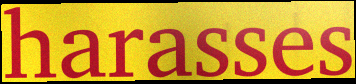
harasses